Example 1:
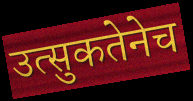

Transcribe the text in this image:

उत्सुकतेनेच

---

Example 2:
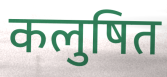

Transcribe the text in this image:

कलुषित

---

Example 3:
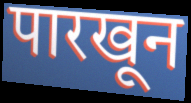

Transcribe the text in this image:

पारखून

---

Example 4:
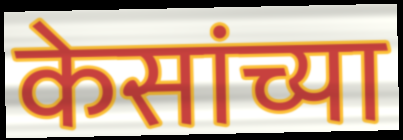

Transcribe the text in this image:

केसांच्या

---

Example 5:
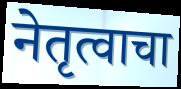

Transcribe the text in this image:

नेतृत्वाचा